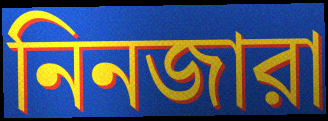
নিনজারা